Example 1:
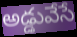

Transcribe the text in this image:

అడ్డువేసే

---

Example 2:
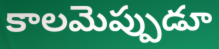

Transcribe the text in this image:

కాలమెప్పుడూ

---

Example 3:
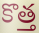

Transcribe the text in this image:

కొత్త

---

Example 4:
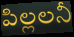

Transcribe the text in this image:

పిల్లలనీ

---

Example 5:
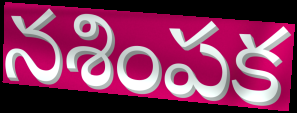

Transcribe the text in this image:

నశింపక